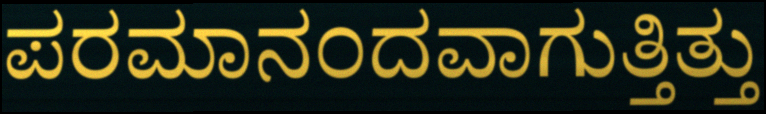
ಪರಮಾನಂದವಾಗುತ್ತಿತ್ತು